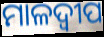
ମାଳଦ୍ଵୀପ